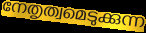
നേതൃത്വമെടുക്കുന്ന